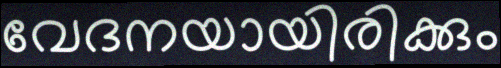
വേദനയായിരിക്കും